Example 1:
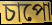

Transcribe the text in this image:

চাপো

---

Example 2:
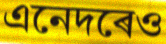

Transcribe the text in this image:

এনেদৰেও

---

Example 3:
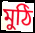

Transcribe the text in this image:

মুঠি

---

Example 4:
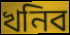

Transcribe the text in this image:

খনিব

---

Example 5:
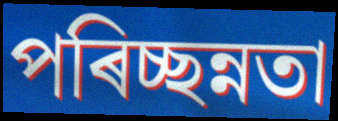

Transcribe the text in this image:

পৰিচ্ছন্নতা